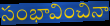
సంభావించినా